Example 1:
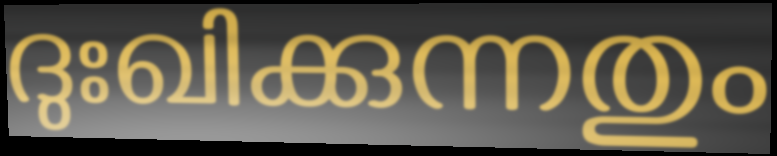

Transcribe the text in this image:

ദുഃഖിക്കുന്നതും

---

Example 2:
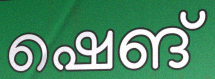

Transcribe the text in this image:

ഷെങ്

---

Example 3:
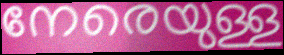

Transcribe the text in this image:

നേരെയുള്ള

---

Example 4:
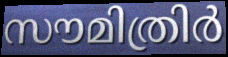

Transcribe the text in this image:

സൗമിത്രിർ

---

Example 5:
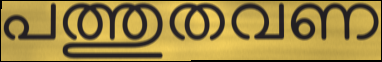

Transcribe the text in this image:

പത്തുതവണ